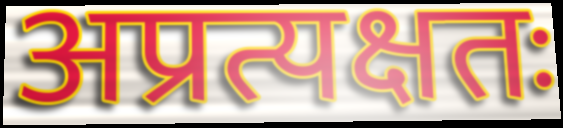
अप्रत्यक्षतः